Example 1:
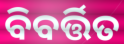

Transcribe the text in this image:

ବିବର୍ତ୍ତିତ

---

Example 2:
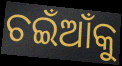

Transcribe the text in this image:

ଚଇଁଆଁକୁ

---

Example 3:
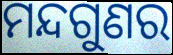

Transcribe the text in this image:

ମନ୍ଦଗୁଣର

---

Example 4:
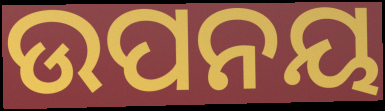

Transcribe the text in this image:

ଉପନୟ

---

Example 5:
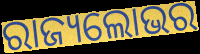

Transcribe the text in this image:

ରାଜ୍ୟଲୋଭର